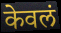
केवलं